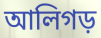
আলিগড়